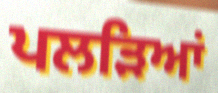
ਪਲੜਿਆਂ